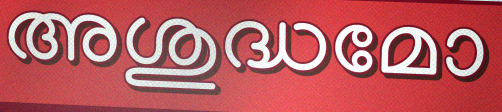
അശുദ്ധമോ